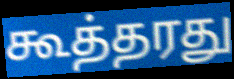
கூத்தரது